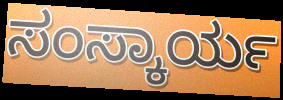
ಸಂಸ್ಕಾರ್ಯ